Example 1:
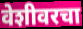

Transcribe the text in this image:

वेशीवरचा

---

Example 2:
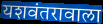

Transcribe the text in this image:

यशवंतरावाला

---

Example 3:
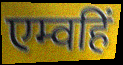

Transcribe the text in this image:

एम्वहिं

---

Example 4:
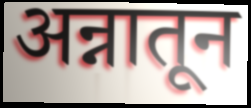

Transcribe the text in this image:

अन्नातून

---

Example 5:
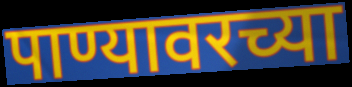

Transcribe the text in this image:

पाण्यावरच्या